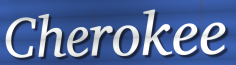
Cherokee